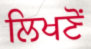
ਲਿਖਣੋਂ